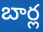
బార్ల